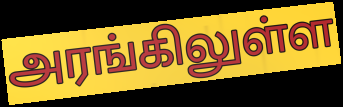
அரங்கிலுள்ள